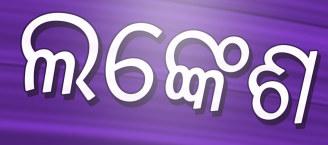
ଲଙ୍କେଶ